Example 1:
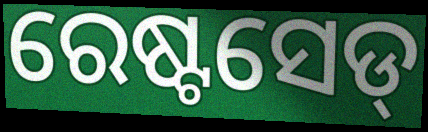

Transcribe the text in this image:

ରେଷ୍ଟସେଡ୍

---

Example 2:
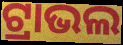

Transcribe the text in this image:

ଟ୍ରାଭଲ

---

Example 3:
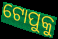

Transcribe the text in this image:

ଟୋପୁକୁ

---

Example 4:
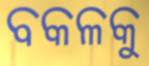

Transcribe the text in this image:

ବକଳକୁ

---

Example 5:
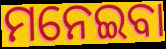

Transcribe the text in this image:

ମନେଇବା